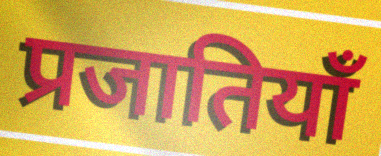
प्रजातियाँ